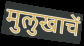
मुलुखाचें